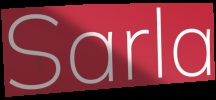
Sarla